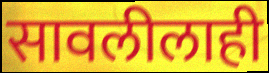
सावलीलाही